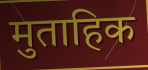
मुताहिक